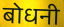
बोधनी